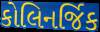
કોલિનર્જિક